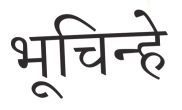
भूचिन्हे